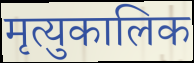
मृत्युकालिक